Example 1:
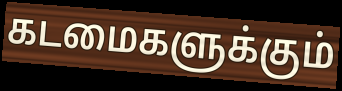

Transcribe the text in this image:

கடமைகளுக்கும்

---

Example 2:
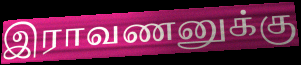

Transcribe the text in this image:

இராவணனுக்கு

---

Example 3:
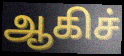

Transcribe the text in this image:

ஆகிச்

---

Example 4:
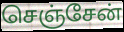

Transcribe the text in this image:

செஞ்சேன்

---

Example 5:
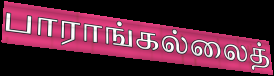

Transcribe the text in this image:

பாராங்கல்லைத்